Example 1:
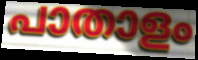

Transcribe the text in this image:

പാതാളം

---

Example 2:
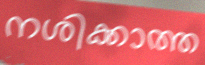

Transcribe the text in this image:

നശിക്കാത്ത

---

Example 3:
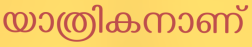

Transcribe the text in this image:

യാത്രികനാണ്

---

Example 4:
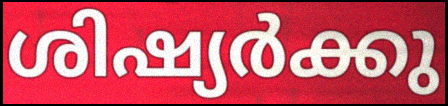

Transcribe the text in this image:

ശിഷ്യർക്കു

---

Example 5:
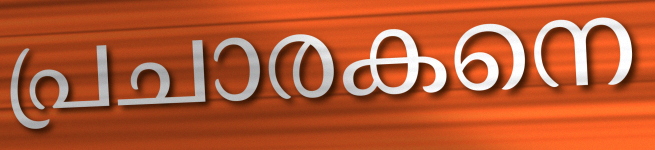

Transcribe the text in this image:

പ്രചാരകനെ